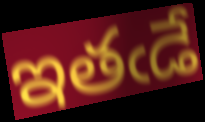
ఇతఁడే